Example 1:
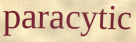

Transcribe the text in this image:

paracytic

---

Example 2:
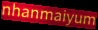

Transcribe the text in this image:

nhanmaiyum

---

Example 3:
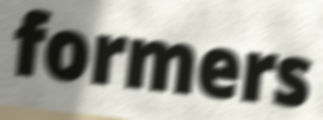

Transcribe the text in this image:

formers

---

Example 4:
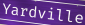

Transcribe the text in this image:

Yardville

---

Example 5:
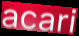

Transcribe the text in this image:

acari